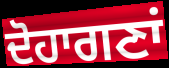
ਦੋਹਾਗਣਾਂ